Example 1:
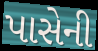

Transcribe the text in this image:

પાસેની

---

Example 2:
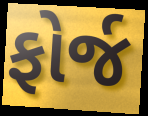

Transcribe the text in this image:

ફોર્જ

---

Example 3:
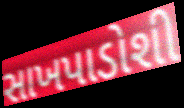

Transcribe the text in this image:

સાખપાડોશી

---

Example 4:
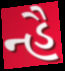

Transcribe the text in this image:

ન્હૈ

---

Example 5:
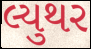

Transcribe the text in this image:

લ્યુથર